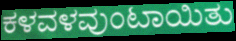
ಕಳವಳವುಂಟಾಯಿತು